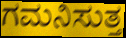
ಗಮನಿಸುತ್ತ